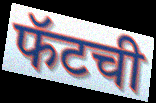
फॅटची